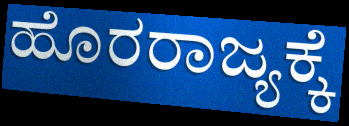
ಹೊರರಾಜ್ಯಕ್ಕೆ